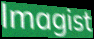
Imagist